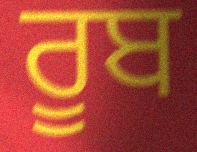
ਰੂਬ